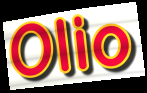
Olio